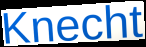
Knecht